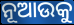
ନୂଆଉକୁ